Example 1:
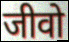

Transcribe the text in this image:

जीवो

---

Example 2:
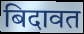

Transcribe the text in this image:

बिदावत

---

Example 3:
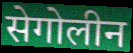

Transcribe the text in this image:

सेगोलीन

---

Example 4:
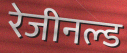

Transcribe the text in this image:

रेजीनल्ड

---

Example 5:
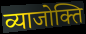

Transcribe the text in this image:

व्याजोक्ति